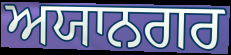
ਅਯਾਨਗਰ